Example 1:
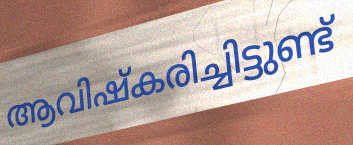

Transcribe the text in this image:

ആവിഷ്കരിച്ചിട്ടുണ്ട്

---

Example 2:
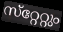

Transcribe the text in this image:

സ്‌റ്റേറ്റും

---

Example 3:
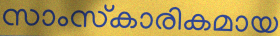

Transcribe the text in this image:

സാംസ്‌കാരികമായ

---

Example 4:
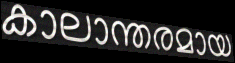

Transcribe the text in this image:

കാലാന്തരമായ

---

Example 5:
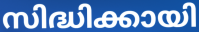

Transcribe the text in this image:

സിദ്ധിക്കായി